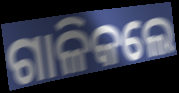
ଗାଳିକଲେ